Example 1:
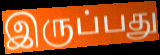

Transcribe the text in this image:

இருப்பது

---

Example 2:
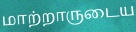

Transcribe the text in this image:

மாற்றாருடைய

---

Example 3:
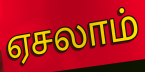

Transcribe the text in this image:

ஏசலாம்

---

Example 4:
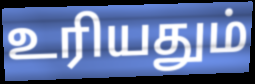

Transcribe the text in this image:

உரியதும்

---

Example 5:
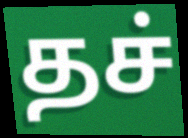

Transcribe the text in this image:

தச்